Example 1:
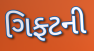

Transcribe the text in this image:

ગિફ્ટની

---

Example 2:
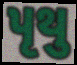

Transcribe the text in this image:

પૃથુ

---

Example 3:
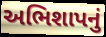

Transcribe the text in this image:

અભિશાપનું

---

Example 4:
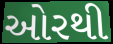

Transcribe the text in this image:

ઓરથી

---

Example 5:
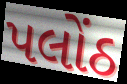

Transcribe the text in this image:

પલોંઠ